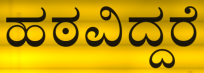
ಹಠವಿದ್ದರೆ